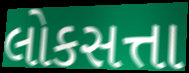
લોકસત્તા